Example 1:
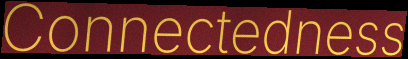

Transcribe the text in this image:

Connectedness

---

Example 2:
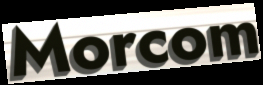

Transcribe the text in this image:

Morcom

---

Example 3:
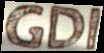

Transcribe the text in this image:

GDI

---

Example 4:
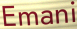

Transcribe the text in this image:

Emani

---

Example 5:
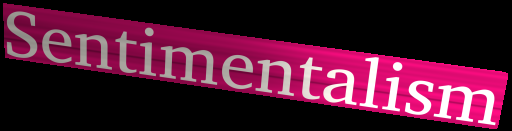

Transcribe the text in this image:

Sentimentalism